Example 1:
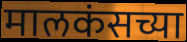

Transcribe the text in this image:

मालकंसच्या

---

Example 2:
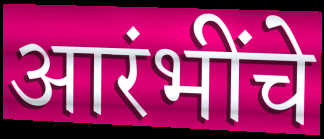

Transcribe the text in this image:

आरंभींचे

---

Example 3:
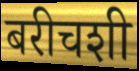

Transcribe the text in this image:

बरीचशी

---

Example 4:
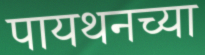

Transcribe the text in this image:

पायथनच्या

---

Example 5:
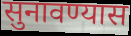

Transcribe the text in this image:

सुनावण्यास